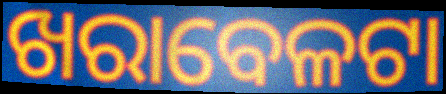
ଖରାବେଳଟା